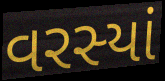
વરસ્યાં